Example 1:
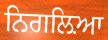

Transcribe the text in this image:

ਨਿਗਲ਼ਿਆ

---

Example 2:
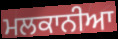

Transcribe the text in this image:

ਮਲਕਾਨੀਆ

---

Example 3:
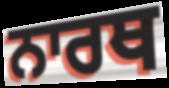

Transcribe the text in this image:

ਨਾਰਥ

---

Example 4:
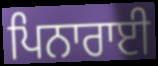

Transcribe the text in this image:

ਪਿਨਾਰਾਈ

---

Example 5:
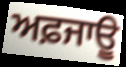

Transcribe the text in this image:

ਅਫ਼ਜਾਊ